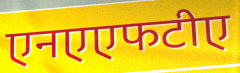
एनएएफटीए